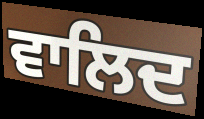
ਵਾਲਿਦ